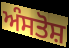
ਅੰਸਤੋਸ਼